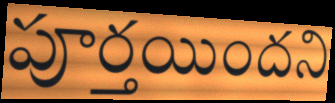
పూర్తయిందని